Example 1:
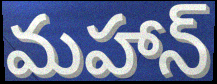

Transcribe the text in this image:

మహాన్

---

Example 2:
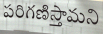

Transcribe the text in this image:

పరిగణిస్తామని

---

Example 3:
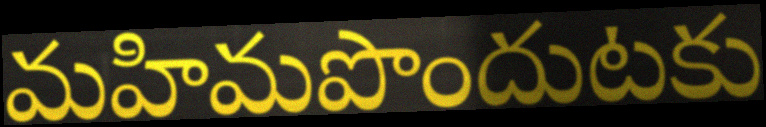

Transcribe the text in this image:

మహిమపొందుటకు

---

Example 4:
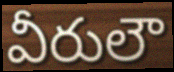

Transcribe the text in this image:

వీరులౌ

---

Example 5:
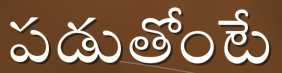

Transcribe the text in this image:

పడుతోంటే